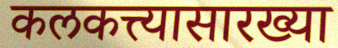
कलकत्त्यासारख्या